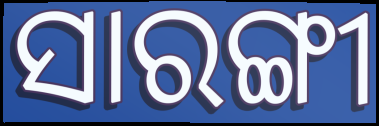
ସାରଙ୍ଗୀ